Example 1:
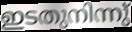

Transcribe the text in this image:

ഇടതുനിന്നു്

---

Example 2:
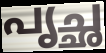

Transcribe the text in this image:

പൃച്ഛ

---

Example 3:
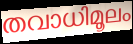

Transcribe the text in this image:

തവാധിമൂലം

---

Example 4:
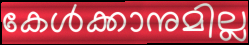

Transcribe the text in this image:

കേൾക്കാനുമില്ല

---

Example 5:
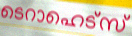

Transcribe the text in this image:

ടെറാഹെട്സ്